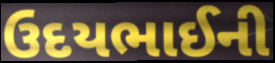
ઉદયભાઈની